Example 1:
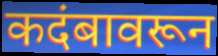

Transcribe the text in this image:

कदंबावरून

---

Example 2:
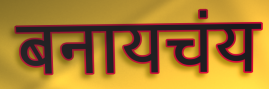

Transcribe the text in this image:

बनायचंय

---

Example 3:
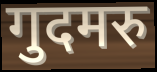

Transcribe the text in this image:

गुदमरु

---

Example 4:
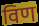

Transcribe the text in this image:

विण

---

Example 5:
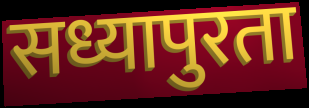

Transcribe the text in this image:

सध्यापुरता